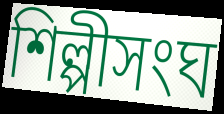
শিল্পীসংঘ